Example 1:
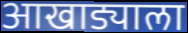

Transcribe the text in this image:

आखाड्याला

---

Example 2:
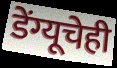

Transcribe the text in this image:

डेंग्यूचेही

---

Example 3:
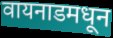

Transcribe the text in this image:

वायनाडमधून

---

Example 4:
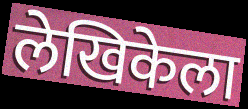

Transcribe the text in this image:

लेखिकेला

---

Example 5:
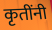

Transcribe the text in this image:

कृतींनी